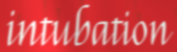
intubation